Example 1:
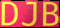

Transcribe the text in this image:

DJB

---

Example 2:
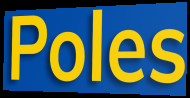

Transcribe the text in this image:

Poles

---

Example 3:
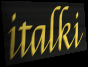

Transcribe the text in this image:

italki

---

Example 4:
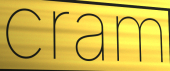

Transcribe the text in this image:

cram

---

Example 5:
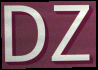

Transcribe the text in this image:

DZ